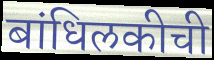
बांधिलकीची